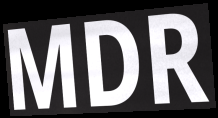
MDR